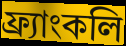
ফ্র্যাংকলি